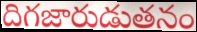
దిగజారుడుతనం